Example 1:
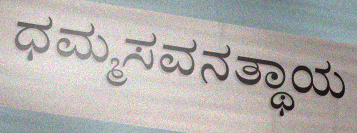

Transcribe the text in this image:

ಧಮ್ಮಸವನತ್ಥಾಯ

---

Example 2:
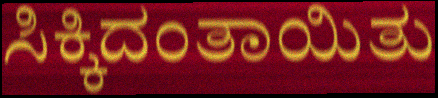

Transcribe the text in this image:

ಸಿಕ್ಕಿದಂತಾಯಿತು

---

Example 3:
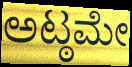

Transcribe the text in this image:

ಅಟ್ಠಮೇ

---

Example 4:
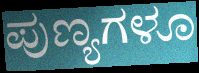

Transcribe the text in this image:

ಪುಣ್ಯಗಳೂ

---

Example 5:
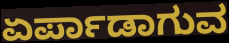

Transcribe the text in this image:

ಏರ್ಪಾಡಾಗುವ